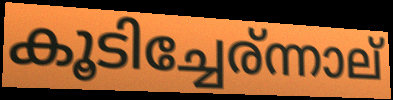
കൂടിച്ചേര്ന്നാല്